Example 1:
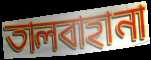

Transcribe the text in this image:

তালবাহানা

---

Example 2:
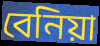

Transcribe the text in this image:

বেনিয়া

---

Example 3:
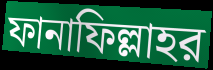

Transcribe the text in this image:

ফানাফিল্লাহর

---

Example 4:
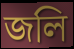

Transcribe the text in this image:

জলি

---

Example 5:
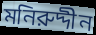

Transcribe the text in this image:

মনিরুদ্দীন